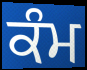
ਕੰਮ